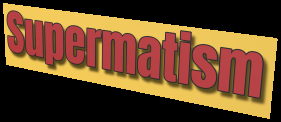
Supermatism